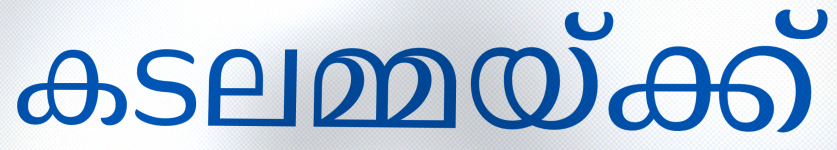
കടലമ്മയ്ക്ക്